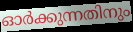
ഓർക്കുന്നതിനും